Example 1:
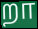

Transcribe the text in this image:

றா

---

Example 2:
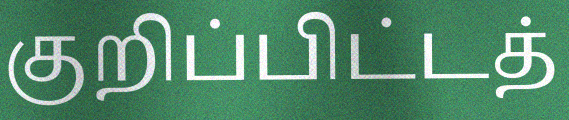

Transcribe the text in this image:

குறிப்பிட்டத்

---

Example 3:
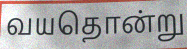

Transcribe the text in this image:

வயதொன்று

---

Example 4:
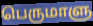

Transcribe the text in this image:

பெருமாளு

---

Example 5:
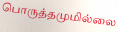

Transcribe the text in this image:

பொருத்தமுமில்லை